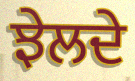
ਝੇਲਦੇ